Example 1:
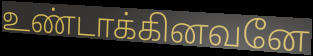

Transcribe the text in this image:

உண்டாக்கினவனே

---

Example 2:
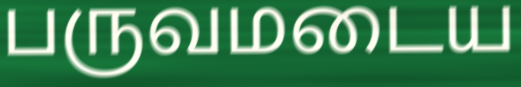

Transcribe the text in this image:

பருவமடைய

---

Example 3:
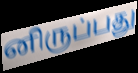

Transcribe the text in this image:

னிருப்பது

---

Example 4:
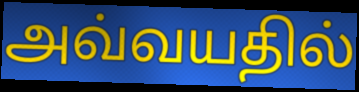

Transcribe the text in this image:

அவ்வயதில்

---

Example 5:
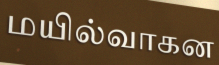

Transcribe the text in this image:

மயில்வாகன